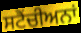
ਸਟੈਂਚੀਅਨਾਂ